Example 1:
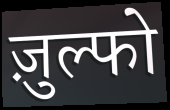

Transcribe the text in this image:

ज़ुल्फो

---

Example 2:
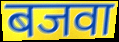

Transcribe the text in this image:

बजवा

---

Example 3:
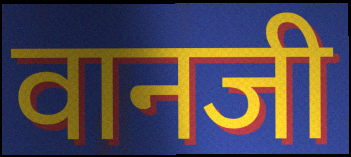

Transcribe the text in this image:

वानजी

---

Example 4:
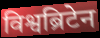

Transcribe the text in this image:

विश्वब्रिटेन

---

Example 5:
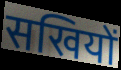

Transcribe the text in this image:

सखियों